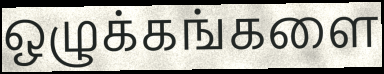
ஒழுக்கங்களை